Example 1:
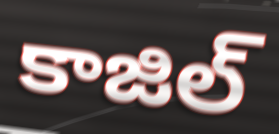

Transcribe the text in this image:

కాజిల్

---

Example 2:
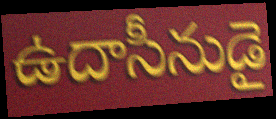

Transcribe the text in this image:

ఉదాసీనుడై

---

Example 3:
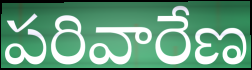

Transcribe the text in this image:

పరివారేణ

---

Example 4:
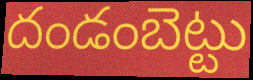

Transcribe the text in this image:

దండంబెట్టు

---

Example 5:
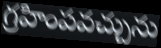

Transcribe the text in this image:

గ్రహింపవచ్చును